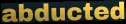
abducted